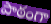
పాఠంగా